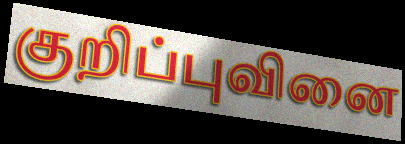
குறிப்புவினை